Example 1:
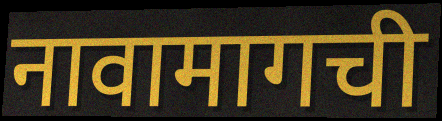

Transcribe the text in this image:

नावामागची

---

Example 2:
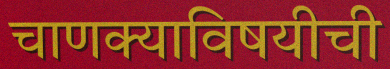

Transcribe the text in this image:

चाणक्याविषयीची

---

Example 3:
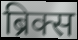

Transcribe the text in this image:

ब्रिक्स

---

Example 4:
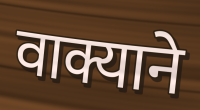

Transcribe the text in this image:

वाक्याने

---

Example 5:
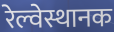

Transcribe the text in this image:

रेल्वेस्थानक